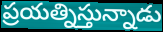
ప్రయత్నిస్తున్నాడు